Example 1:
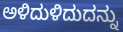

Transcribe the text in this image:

ಅಳಿದುಳಿದುದನ್ನು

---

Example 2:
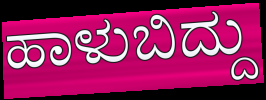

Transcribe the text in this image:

ಹಾಳುಬಿದ್ದು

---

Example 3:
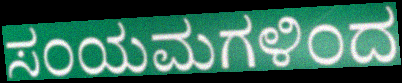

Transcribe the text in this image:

ಸಂಯಮಗಳಿಂದ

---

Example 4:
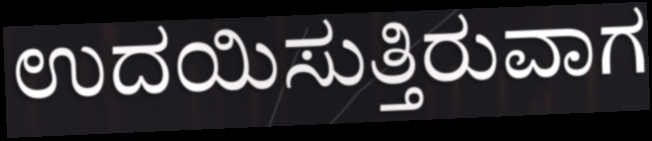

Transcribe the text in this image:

ಉದಯಿಸುತ್ತಿರುವಾಗ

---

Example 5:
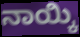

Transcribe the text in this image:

ನಾಯ್ಕಿ